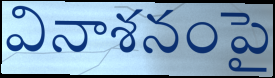
వినాశనంపై